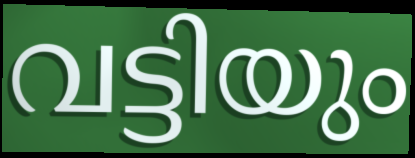
വട്ടിയും